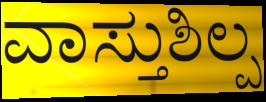
ವಾಸ್ತುಶಿಲ್ಪ